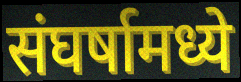
संघर्षामध्ये